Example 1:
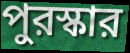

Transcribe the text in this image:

পুরস্কার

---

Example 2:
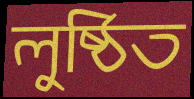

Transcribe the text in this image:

লুষ্ঠিত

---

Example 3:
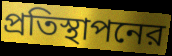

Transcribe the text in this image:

প্রতিস্থাপনের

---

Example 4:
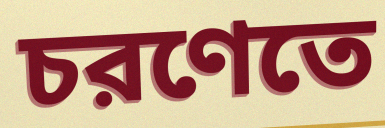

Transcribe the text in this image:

চরণেতে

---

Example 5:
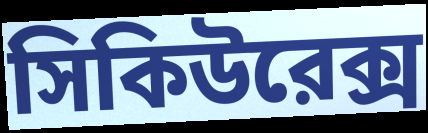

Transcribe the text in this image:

সিকিউরেক্স